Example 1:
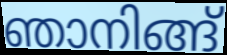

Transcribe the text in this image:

ഞാനിങ്ങ്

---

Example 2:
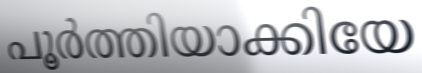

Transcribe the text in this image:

പൂർത്തിയാക്കിയേ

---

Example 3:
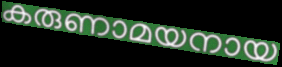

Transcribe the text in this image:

കരുണാമയനായ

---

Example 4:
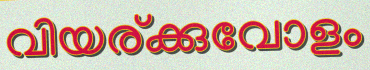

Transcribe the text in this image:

വിയര്ക്കുവോളം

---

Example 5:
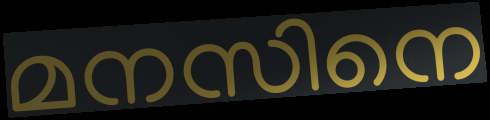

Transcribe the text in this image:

മനസിനെ